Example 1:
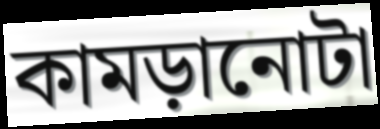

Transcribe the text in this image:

কামড়ানোটা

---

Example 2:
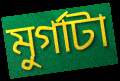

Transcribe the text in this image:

মুর্গাটা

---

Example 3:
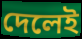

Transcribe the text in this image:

দেলেই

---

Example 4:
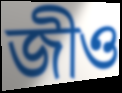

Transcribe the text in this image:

জীও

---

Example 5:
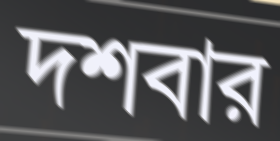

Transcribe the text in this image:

দশবার